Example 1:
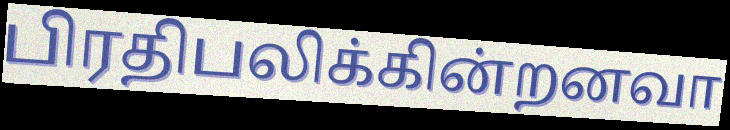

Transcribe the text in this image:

பிரதிபலிக்கின்றனவா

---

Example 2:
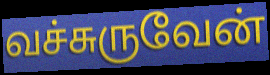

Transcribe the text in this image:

வச்சுருவேன்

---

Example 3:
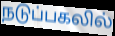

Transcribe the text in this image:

நடுப்பகலில்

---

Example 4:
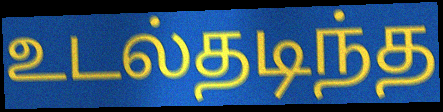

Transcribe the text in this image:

உடல்தடிந்த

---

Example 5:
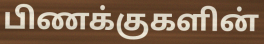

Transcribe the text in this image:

பிணக்குகளின்